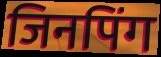
जिनपिंग